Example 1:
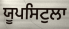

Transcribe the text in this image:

ਯੂਪਸਿਟੁਲਾ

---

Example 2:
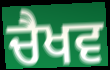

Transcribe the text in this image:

ਚੈਖਵ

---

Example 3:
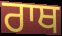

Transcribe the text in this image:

ਰਾਥ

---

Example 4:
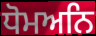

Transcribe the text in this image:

ਧੋਮਅਨਿ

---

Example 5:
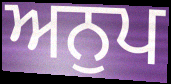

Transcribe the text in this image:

ਅਨੁਪ